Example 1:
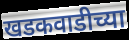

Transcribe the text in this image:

खडकवाडीच्या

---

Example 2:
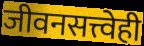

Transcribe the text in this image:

जीवनसत्त्वेही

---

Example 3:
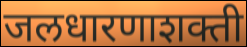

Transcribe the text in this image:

जलधारणाशक्ती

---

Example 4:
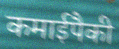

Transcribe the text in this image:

कमाईपैकी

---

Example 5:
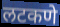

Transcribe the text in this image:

लटकणे